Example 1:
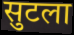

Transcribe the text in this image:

सुटला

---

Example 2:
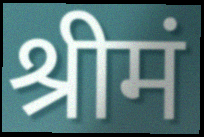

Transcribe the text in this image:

श्रीमं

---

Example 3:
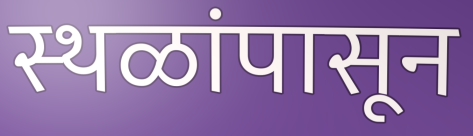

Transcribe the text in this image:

स्थळांपासून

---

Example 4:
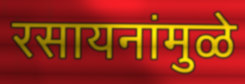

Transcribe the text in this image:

रसायनांमुळे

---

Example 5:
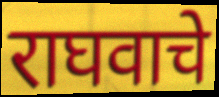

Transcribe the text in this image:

राघवाचे